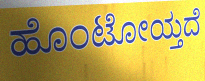
ಹೊಂಟೋಯ್ತದೆ